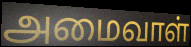
அமைவாள்